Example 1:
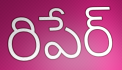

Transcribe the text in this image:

రిపేర్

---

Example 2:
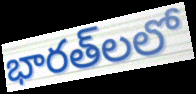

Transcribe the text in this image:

భారత్‌లలో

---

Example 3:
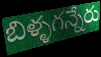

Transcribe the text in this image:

బిళ్ళగన్నేరు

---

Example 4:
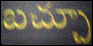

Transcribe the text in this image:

బచ్చూ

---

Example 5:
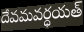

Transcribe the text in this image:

దేవమవర్ధయత్